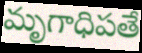
మృగాధిపతే